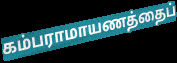
கம்பராமாயணத்தைப்